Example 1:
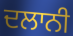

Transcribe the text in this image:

ਦਲਾਨੀ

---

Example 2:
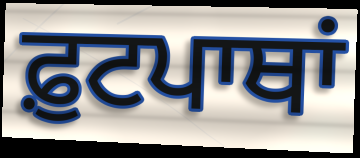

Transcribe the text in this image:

ਫ਼ੁਟਪਾਥਾਂ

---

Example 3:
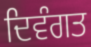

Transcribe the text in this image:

ਦਿਵੰਗਤ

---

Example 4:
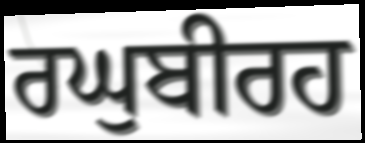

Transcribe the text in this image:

ਰਘੁਬੀਰਹ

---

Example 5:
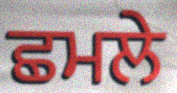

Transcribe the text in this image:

ਛਮਲੇ